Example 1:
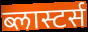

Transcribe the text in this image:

ब्लास्टर्स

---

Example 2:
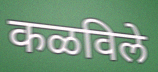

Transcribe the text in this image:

कळविले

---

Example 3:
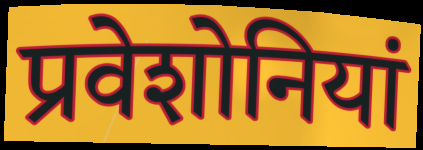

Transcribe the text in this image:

प्रवेशोनियां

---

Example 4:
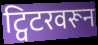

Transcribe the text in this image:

ट्विटरवरून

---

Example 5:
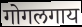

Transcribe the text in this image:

गोगलगाय